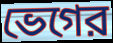
ভেগের